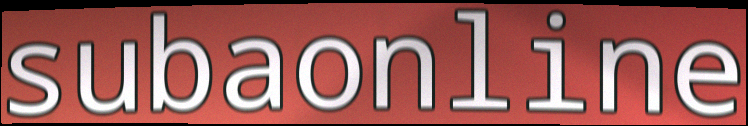
subaonline